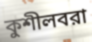
কুশীলবরা